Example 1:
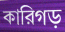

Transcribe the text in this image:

কারিগড়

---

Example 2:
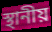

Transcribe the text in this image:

স্থানীয়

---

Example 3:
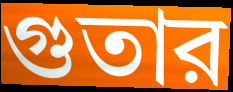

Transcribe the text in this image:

গুতার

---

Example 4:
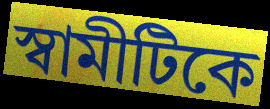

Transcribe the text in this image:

স্বামীটিকে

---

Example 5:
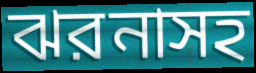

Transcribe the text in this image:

ঝরনাসহ